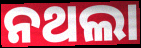
ନଥଲା